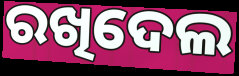
ରଖିଦେଲ